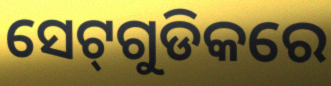
ସେଟ୍‌ଗୁଡିକରେ